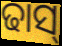
ଢାସ୍